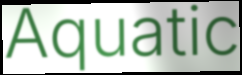
Aquatic